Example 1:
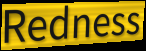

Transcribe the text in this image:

Redness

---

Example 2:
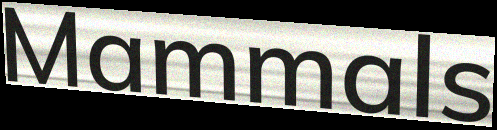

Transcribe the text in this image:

Mammals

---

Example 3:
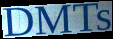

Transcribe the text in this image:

DMTs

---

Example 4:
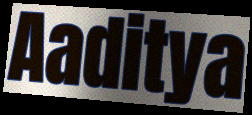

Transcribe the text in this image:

Aaditya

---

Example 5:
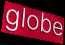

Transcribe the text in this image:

globe